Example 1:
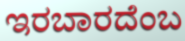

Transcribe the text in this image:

ಇರಬಾರದೆಂಬ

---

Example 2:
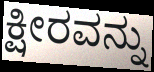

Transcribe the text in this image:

ಕ್ಷೀರವನ್ನು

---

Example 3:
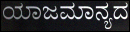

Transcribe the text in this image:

ಯಾಜಮಾನ್ಯದ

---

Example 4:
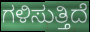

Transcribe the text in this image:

ಗಳಿಸುತ್ತಿದೆ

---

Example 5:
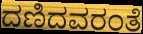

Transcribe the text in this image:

ದಣಿದವರಂತೆ